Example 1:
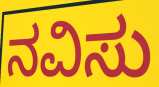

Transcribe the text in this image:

ನವಿಸು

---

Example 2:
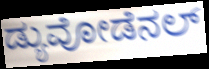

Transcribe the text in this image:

ಡ್ಯುವೋಡೆನಲ್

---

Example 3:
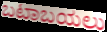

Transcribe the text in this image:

ಬಟಾಬಯಲು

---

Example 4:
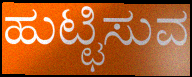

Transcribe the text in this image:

ಹುಟ್ಟಿಸುವ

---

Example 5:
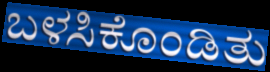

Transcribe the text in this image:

ಬಳಸಿಕೊಂಡಿತು